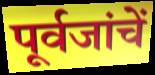
पूर्वजांचें